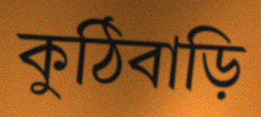
কুঠিবাড়ি